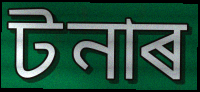
টনাৰ